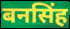
बनसिंह